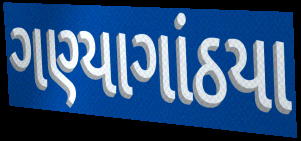
ગણ્યાગાંઠયા